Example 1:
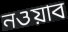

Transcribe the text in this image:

নওয়াব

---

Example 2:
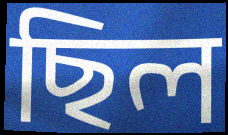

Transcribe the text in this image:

ছিল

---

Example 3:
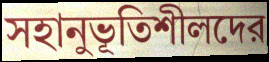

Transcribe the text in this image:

সহানুভূতিশীলদের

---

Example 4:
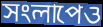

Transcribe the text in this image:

সংলাপেও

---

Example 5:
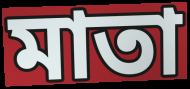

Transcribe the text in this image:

মাতা